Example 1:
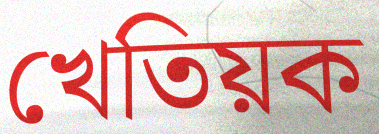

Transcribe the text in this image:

খেতিয়ক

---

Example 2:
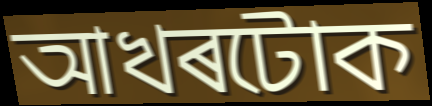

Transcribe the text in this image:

আখৰটোক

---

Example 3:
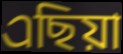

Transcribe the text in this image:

এছিয়া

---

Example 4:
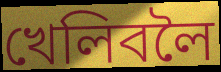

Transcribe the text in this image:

খেলিবলৈ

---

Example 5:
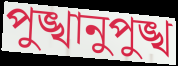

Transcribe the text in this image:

পুঙ্খানুপুঙ্খ